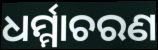
ଧର୍ମ୍ମାଚରଣ